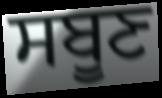
ਸਬੂਣ